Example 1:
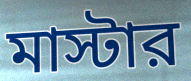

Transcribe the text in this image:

মাস্টার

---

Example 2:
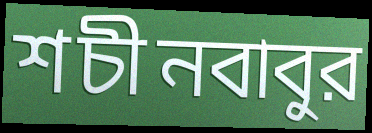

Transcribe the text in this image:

শচীনবাবুর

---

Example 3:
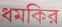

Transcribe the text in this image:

ধমকির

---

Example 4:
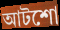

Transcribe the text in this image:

আটশো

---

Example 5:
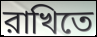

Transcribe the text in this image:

রাখিতে